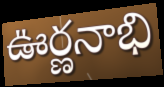
ఊర్ణనాభి